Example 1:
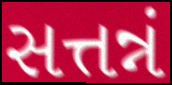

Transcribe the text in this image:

સત્તન્નં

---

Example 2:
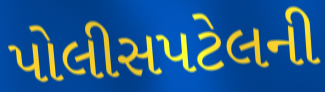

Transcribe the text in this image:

પોલીસપટેલની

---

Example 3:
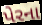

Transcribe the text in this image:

પેરના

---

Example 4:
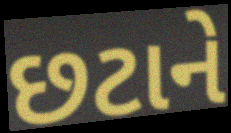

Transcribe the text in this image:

છટાને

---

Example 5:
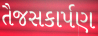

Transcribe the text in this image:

તૈજસકાર્પણ